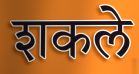
शकले